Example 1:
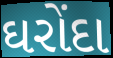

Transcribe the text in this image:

ઘરોંદા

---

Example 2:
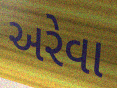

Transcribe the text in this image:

અરેવા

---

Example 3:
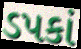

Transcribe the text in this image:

ડપકાં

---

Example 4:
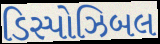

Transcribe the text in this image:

ડિસ્પોઝિબલ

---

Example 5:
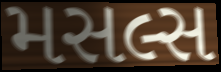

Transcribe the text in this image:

મસલ્સ